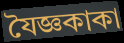
যৈজ্ঞকাকা